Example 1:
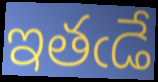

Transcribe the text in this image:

ఇతఁడే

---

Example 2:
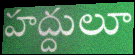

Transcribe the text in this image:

హద్దులూ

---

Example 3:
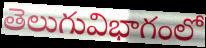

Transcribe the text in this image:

తెలుగువిభాగంలో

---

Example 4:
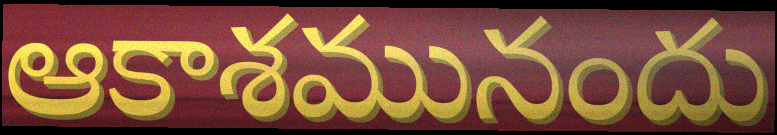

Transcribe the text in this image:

ఆకాశమునందు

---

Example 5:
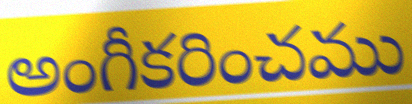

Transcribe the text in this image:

అంగీకరించము